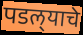
पडल्याचे